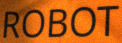
ROBOT